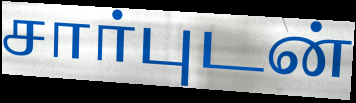
சார்புடன்